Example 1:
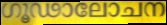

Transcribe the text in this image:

ഗൂഢാലോചന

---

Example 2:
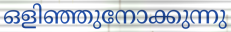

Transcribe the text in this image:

ഒളിഞ്ഞുനോക്കുന്നു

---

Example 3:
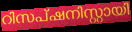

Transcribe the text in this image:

റിസപ്ഷനിസ്റ്റായി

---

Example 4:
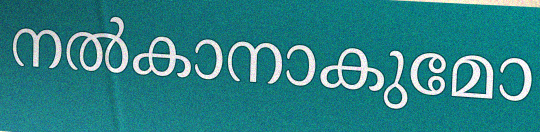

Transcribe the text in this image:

നൽകാനാകുമോ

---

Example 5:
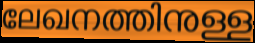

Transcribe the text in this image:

ലേഖനത്തിനുള്ള